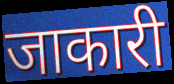
जाकारी